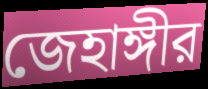
জেহাঙ্গীর